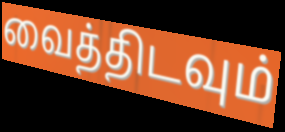
வைத்திடவும்